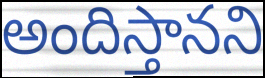
అందిస్తానని